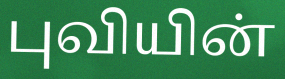
புவியின்